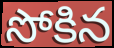
సోకిన